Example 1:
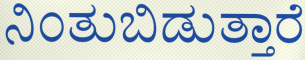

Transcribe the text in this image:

ನಿಂತುಬಿಡುತ್ತಾರೆ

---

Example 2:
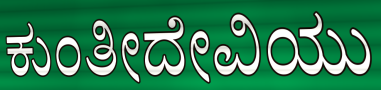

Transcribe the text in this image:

ಕುಂತೀದೇವಿಯು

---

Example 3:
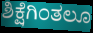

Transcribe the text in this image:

ಶಿಕ್ಷೆಗಿಂತಲೂ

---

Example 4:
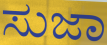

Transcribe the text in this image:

ಸುಜಾ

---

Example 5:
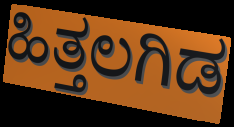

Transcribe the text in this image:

ಹಿತ್ತಲಗಿಡ